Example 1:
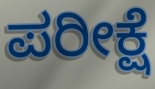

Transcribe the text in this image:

ಪರೀಕ್ಷೆ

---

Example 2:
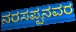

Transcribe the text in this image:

ನರಸಪ್ಪನವರ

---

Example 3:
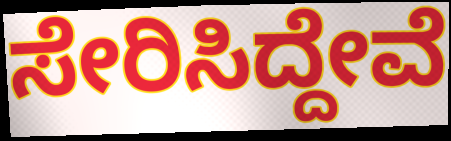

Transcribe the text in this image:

ಸೇರಿಸಿದ್ದೇವೆ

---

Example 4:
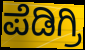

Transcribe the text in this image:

ಪೆಡಿಗ್ರಿ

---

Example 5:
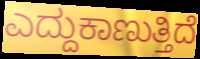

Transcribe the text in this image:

ಎದ್ದುಕಾಣುತ್ತಿದೆ